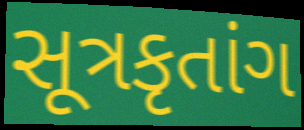
સૂત્રકૃતાંગ